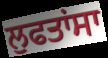
ਲੁਫਤਾਂਸਾ